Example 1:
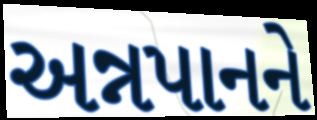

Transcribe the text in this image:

અન્નપાનને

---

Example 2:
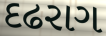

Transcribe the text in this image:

દઢરાગ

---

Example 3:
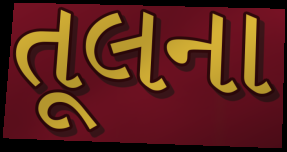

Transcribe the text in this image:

તૂલના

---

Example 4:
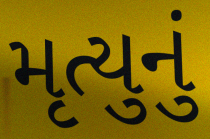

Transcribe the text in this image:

મૃત્યુનું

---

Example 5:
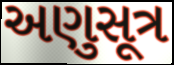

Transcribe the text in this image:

અણુસૂત્ર